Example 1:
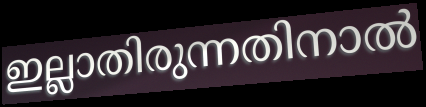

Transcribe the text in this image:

ഇല്ലാതിരുന്നതിനാൽ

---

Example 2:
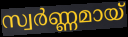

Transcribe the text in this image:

സ്വർണ്ണമായ്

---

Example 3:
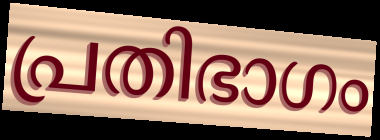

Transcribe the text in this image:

പ്രതിഭാഗം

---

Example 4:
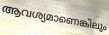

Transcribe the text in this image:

ആവശ്യമാണെങ്കിലും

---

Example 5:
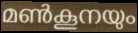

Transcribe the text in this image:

മൺകൂനയും